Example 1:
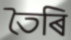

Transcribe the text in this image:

তৈৰি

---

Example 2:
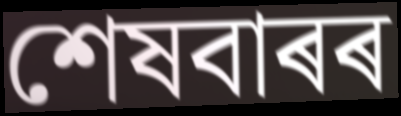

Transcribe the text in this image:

শেষবাৰৰ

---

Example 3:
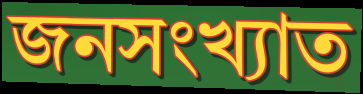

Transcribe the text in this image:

জনসংখ্যাত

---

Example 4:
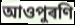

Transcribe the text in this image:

আওপুৰণি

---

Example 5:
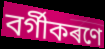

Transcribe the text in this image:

বৰ্গীকৰণে